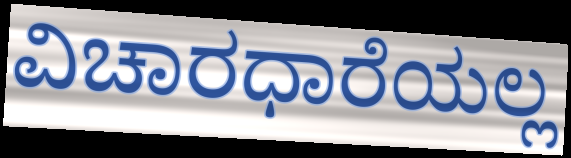
ವಿಚಾರಧಾರೆಯಲ್ಲ